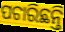
ପଚାରିଛନ୍ତି